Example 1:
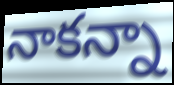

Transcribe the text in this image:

నాకన్నా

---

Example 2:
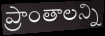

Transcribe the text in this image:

ప్రాంతాలన్ని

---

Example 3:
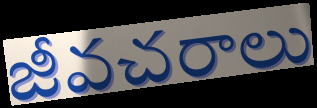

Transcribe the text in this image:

జీవచరాలు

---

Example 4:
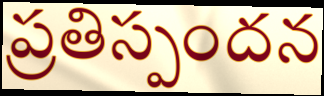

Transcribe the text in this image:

ప్రతిస్పందన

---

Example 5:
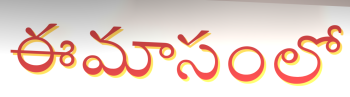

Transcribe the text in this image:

ఈమాసంలో